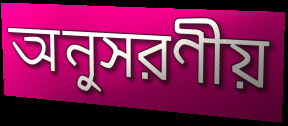
অনুসরণীয়